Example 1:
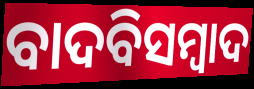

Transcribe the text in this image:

ବାଦବିସମ୍ବାଦ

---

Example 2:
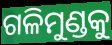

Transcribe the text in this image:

ଗଳିମୁଣ୍ଡକୁ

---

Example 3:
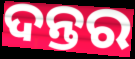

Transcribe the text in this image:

ଦନ୍ତର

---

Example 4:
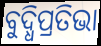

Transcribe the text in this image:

ବୁଦ୍ଧିପ୍ରତିଭା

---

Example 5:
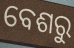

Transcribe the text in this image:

ବେଶରୁ